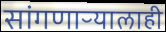
सांगणाऱ्यालाही